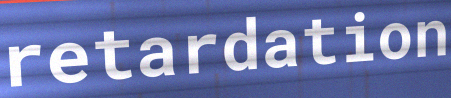
retardation